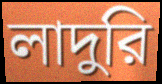
লাদুরি